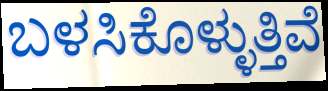
ಬಳಸಿಕೊಳ್ಳುತ್ತಿವೆ